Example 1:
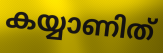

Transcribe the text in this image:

കയ്യാണിത്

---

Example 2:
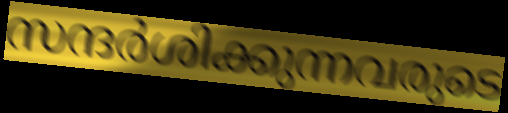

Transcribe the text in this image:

സന്ദർശിക്കുന്നവരുടെ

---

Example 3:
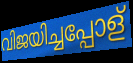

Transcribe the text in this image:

വിജയിച്ചപ്പോള്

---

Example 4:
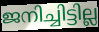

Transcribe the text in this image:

ജനിച്ചിട്ടില്ല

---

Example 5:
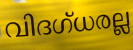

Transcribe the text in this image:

വിദഗ്ധരല്ല